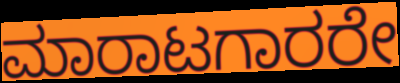
ಮಾರಾಟಗಾರರೇ